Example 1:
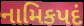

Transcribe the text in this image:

નામિકપદં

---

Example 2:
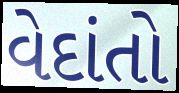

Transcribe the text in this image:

વેદાંતો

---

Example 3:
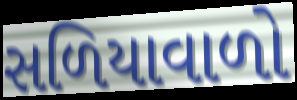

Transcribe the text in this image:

સળિયાવાળો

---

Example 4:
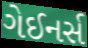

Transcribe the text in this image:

ગેઈનર્સ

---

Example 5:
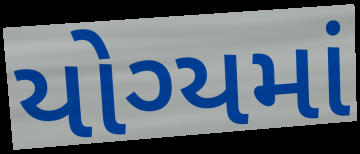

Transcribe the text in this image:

યોગ્યમાં